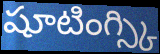
షూటింగ్స్కి